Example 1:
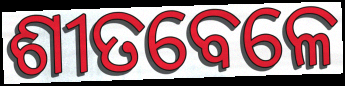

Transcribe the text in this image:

ଶୀତବେଳେ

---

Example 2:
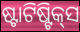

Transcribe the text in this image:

ଷ୍ଟାଟିଷ୍ଟିକ୍‍ସ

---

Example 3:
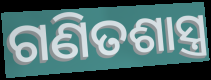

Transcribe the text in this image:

ଗଣିତଶାସ୍ତ୍ର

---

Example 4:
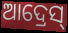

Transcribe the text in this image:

ଆଦ୍ରେସ୍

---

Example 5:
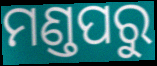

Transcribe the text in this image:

ମଣ୍ଡପରୁ